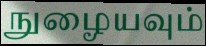
நுழையவும்